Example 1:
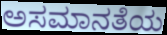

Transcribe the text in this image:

ಅಸಮಾನತೆಯ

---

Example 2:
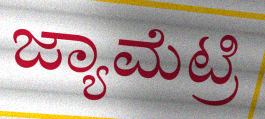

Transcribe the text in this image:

ಜ್ಯಾಮೆಟ್ರಿ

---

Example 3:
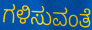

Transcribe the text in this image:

ಗಳಿಸುವಂತೆ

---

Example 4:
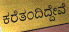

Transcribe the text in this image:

ಕರೆತಂದಿದ್ದೇವೆ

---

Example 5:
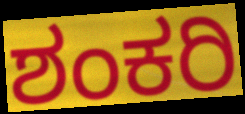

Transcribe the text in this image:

ಶಂಕರಿ